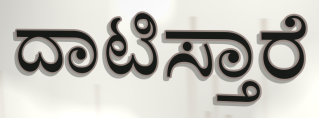
ದಾಟಿಸ್ತಾರೆ